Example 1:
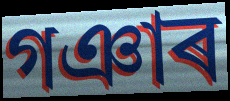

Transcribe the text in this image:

গঞাৰ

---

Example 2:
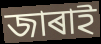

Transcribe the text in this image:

জাৰাই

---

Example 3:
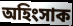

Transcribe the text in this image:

অহিংসাক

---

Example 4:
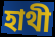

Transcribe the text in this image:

হাথী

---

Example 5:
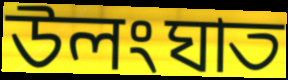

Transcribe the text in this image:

উলংঘাত